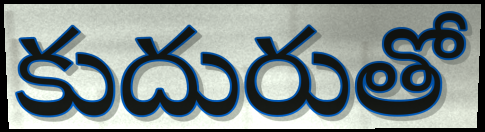
కుదురుతో